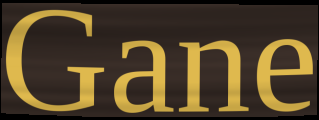
Gane